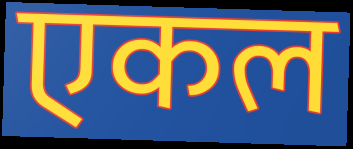
एकल